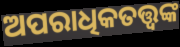
ଅପରାଧିକତତ୍ତ୍ୱଙ୍କ